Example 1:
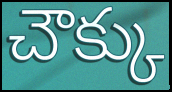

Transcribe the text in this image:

చౌక్కు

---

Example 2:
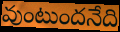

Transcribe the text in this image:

వుంటుందనేది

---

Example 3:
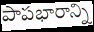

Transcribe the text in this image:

పాపభారాన్ని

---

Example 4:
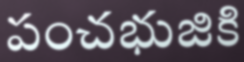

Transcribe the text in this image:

పంచభుజికి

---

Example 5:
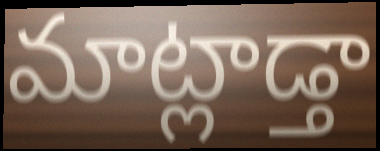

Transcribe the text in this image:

మాట్లాడ్తా